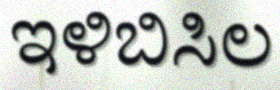
ಇಳಿಬಿಸಿಲ